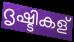
ദൃഷ്ടികള്